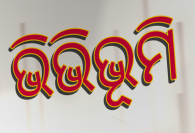
ଭିଭିଭୂମି